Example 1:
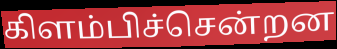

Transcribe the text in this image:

கிளம்பிச்சென்றன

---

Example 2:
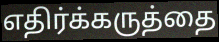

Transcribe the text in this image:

எதிர்க்கருத்தை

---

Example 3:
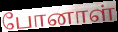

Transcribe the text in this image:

போனாள்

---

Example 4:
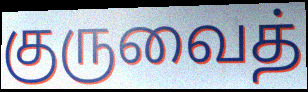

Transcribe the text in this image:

குருவைத்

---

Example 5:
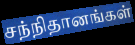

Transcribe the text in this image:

சந்நிதானங்கள்